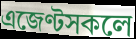
এজেণ্টসকলে